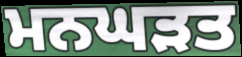
ਮਨਘੜਤ